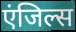
एंजिल्स